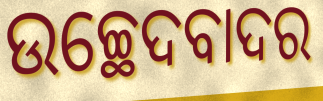
ଉଚ୍ଛେଦବାଦର